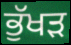
ਭੁੱਖੜ